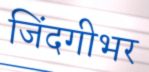
जिंदगीभर